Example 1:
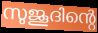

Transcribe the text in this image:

സുജൂദിന്റെ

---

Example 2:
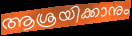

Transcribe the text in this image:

ആശ്രയിക്കാനും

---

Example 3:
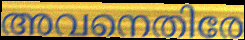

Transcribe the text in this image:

അവനെതിരേ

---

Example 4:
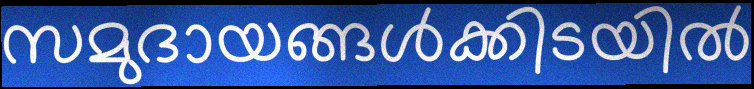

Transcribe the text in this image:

സമുദായങ്ങൾക്കിടയിൽ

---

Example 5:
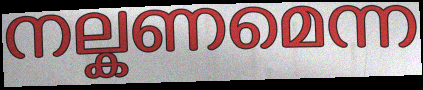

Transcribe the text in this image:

നല്കണമെന്ന